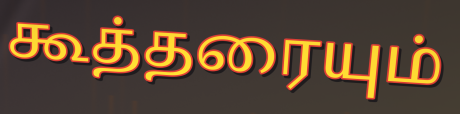
கூத்தரையும்